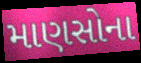
માણસોના